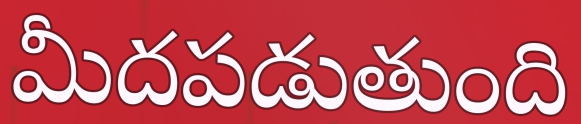
మీదపడుతుంది